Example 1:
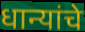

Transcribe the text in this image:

धान्यांचे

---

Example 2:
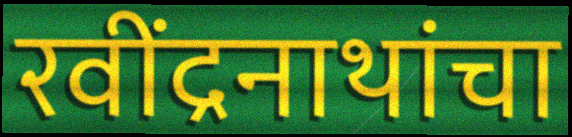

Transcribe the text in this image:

रवींद्रनाथांचा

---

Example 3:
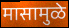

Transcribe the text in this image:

मासामुळे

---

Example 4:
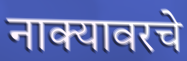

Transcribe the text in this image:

नाक्यावरचे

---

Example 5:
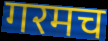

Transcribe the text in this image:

गरमच